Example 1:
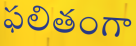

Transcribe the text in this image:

ఫలితంగా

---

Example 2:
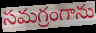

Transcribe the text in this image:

సమగ్రంగాను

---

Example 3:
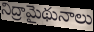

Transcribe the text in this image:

నిద్రామైథునాలు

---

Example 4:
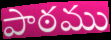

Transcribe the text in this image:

పాఠము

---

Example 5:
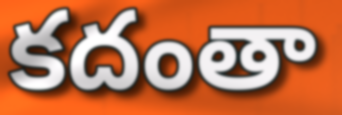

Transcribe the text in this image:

కదంతా